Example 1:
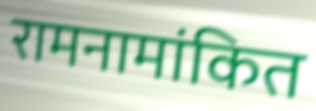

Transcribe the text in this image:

रामनामांकित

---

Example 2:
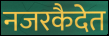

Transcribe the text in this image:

नजरकैदेत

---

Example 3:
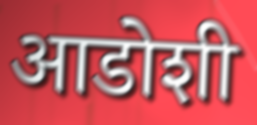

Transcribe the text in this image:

आडोशी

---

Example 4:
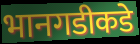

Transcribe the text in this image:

भानगडीकडे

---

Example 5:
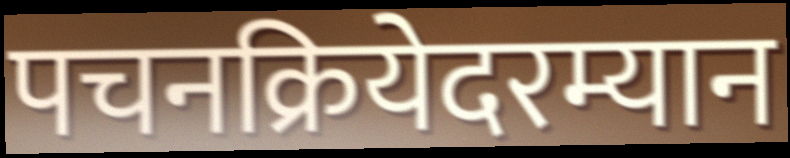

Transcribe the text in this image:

पचनक्रियेदरम्यान